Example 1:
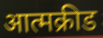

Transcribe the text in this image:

आत्मक्रीड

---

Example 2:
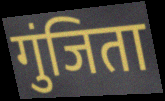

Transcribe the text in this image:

गुंजिता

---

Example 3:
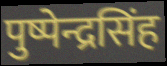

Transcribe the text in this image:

पुष्पेन्द्रसिंह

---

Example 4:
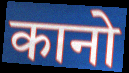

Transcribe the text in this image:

कानो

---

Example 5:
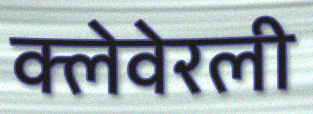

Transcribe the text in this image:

क्लेवेरली